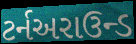
ટર્નઅરાઉન્ડ